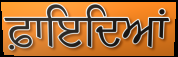
ਫ਼ਾਇਦਿਆਂ